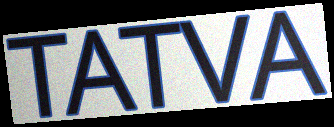
TATVA